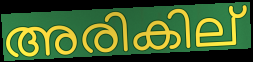
അരികില്